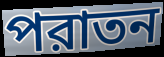
পরাতন